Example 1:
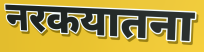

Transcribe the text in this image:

नरकयातना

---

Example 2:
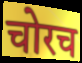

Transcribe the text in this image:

चोरच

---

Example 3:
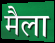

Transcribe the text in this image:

मैला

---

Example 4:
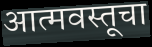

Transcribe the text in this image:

आत्मवस्तूचा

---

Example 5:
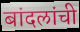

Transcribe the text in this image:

बांदलांची